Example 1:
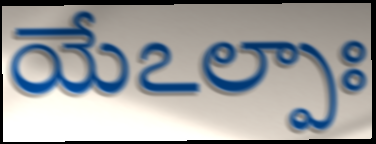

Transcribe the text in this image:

యేఽల్పాః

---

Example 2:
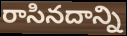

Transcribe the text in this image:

రాసినదాన్ని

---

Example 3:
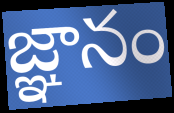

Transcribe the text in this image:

జ్ఞానం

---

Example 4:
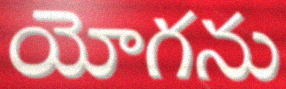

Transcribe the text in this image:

యోగను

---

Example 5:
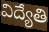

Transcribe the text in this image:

విద్యేతి